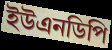
ইউএনডিপি